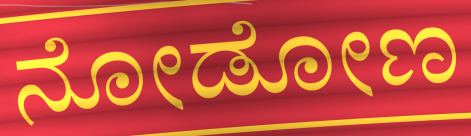
ನೋಡೋಣ